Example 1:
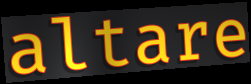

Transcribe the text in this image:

altare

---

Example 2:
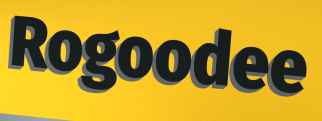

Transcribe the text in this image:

Rogoodee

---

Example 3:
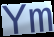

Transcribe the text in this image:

Ym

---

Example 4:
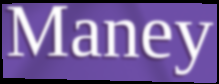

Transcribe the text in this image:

Maney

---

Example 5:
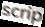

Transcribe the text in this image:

scrip